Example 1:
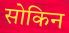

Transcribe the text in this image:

सोकिन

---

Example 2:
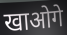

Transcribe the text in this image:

खाओगे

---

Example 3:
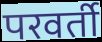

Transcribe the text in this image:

परवर्ती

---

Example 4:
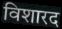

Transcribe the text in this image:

विशारद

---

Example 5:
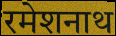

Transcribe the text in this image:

रमेशनाथ